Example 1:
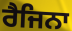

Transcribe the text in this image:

ਰੈਜਿਨਾ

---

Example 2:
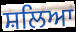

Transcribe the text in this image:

ਸ਼ਲਿਆ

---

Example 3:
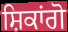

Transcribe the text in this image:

ਸ਼ਿਕਾਂਗੋ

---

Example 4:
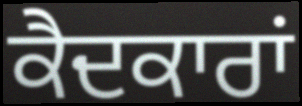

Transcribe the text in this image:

ਕੈਦਕਾਰਾਂ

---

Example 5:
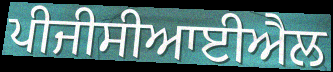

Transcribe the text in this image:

ਪੀਜੀਸੀਆਈਐਲ